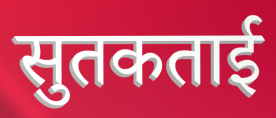
सुतकताई